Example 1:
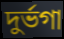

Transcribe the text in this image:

দুর্ভগা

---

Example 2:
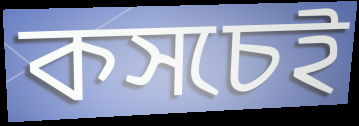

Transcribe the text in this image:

কসচেই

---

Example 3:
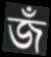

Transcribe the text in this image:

জঁ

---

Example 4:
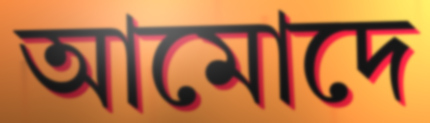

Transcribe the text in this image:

আমোদে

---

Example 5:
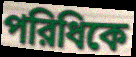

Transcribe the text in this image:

পরিধিকে